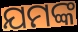
ଯମଙ୍କ